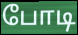
போடி